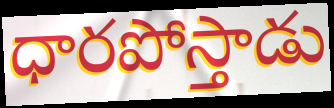
ధారపోస్తాడు